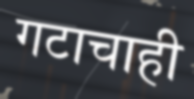
गटाचाही